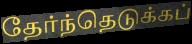
தேர்ந்தெடுக்கப்